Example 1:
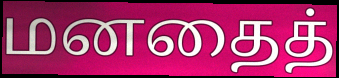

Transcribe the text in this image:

மனதைத்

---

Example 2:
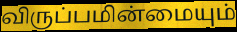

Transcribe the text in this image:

விருப்பமின்மையும்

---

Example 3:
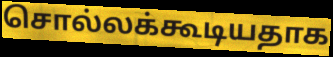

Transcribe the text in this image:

சொல்லக்கூடியதாக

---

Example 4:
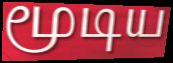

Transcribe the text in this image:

மூடிய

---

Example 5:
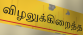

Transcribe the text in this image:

விழலுக்கிறைத்த